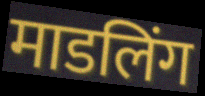
माडलिंग